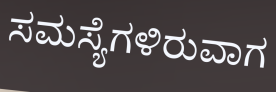
ಸಮಸ್ಯೆಗಳಿರುವಾಗ